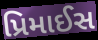
પ્રિમાઈસ